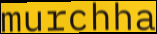
murchha